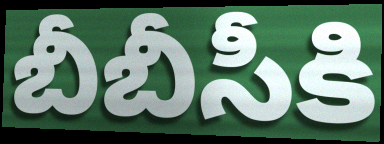
బీబీసీకి